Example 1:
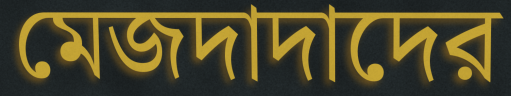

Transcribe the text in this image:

মেজদাদাদের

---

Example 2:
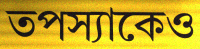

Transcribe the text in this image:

তপস্যাকেও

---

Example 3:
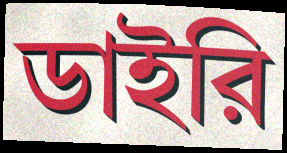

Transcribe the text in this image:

ডাইরি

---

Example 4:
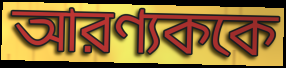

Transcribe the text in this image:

আরণ্যককে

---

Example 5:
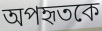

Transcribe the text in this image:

অপহৃতকে